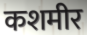
कशमीर